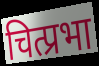
चित्प्रभा